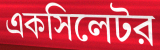
একসিলেটর